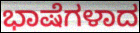
ಭಾಷೆಗಳಾದ